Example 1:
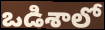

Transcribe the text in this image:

ఒడిశాలో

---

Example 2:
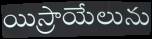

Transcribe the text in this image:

యిస్రాయేలును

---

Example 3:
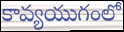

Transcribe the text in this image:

కావ్యయుగంలో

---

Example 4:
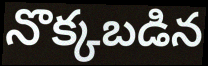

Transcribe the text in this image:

నొక్కబడిన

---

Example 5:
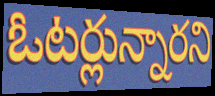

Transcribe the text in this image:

ఓటర్లున్నారని